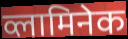
व्लामिनेक